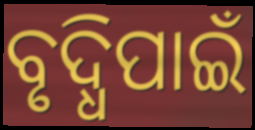
ବୃଦ୍ଧିପାଇଁ